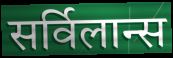
सर्विलान्स